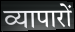
व्यापारों